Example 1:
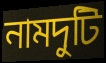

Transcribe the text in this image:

নামদুটি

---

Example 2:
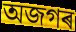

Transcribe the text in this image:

অজগৰ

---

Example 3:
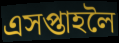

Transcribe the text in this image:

এসপ্তাহলৈ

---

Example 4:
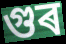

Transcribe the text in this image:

গুৰ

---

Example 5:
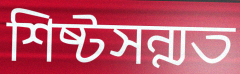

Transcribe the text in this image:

শিষ্টসন্মত